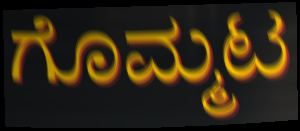
ಗೊಮ್ಮಟ